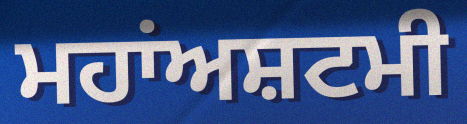
ਮਹਾਂਅਸ਼ਟਮੀ